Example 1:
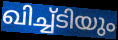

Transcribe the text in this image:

ഖിച്ച്ടിയും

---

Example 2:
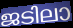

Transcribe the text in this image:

ജടിലാ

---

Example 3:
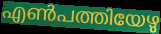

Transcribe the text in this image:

എൺപത്തിയേഴു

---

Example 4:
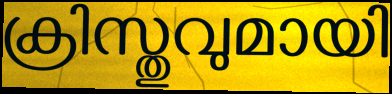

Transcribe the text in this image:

ക്രിസ്തുവുമായി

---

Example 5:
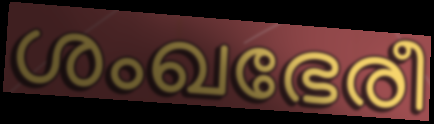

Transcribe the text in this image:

ശംഖഭേരീ